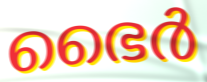
ഭൈർ